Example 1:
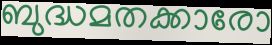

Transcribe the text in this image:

ബുദ്ധമതക്കാരോ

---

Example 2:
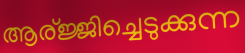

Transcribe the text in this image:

ആര്ജ്ജിച്ചെടുക്കുന്ന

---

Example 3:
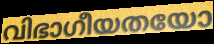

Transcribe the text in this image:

വിഭാഗീയതയോ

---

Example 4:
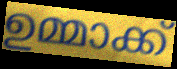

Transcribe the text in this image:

ഉമ്മാക്ക്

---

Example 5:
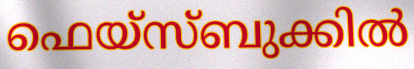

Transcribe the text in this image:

ഫെയ്സ്ബുക്കിൽ